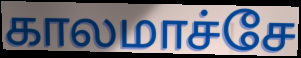
காலமாச்சே